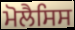
ਮੋਲੈਸਿਸ